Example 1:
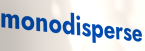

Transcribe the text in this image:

monodisperse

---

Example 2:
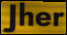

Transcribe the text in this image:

Jher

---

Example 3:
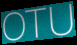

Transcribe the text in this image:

OTU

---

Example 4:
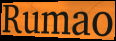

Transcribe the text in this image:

Rumao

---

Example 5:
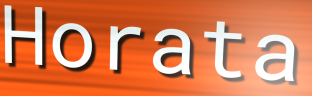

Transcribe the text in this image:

Horata